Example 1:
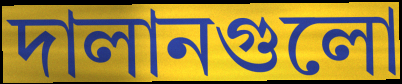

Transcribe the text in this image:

দালানগুলো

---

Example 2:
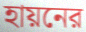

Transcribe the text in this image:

হায়নের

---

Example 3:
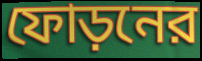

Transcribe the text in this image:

ফোড়নের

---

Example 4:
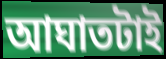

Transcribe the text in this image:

আঘাতটাই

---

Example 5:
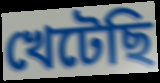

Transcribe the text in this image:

খেটেছি